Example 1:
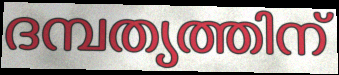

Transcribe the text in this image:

ദമ്പത്യത്തിന്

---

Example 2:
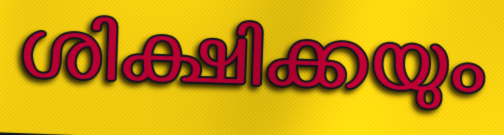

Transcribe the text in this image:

ശിക്ഷിക്കയും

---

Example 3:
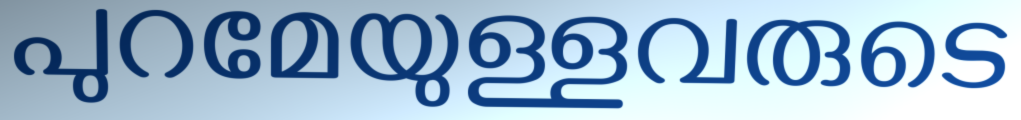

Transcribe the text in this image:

പുറമേയുള്ളവരുടെ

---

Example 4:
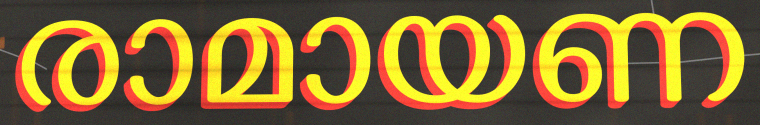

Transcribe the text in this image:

രാമായണ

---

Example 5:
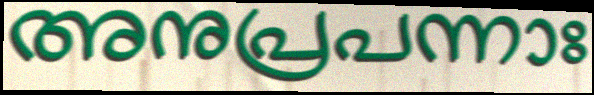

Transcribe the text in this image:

അനുപ്രപന്നാഃ